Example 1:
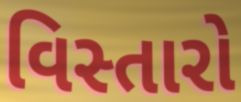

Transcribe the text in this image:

વિસ્તારો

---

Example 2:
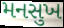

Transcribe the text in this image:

મનસુખ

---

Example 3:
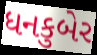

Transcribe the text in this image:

ધનકુબેર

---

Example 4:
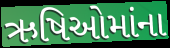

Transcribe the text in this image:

ઋષિઓમાંના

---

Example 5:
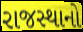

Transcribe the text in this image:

રાજસ્થાનો